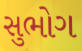
સુભોગ